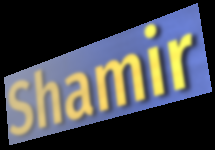
Shamir